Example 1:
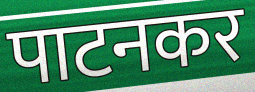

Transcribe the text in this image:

पाटनकर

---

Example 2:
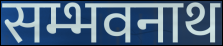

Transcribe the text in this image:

सम्भवनाथ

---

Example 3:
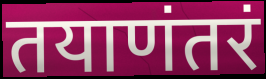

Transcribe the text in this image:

तयाणंतरं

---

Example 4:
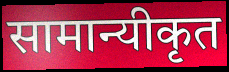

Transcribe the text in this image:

सामान्यीकृत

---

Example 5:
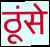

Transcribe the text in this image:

ठूंसे